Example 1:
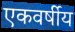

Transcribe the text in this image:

एकवर्षीय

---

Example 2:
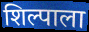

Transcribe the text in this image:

शिल्पाला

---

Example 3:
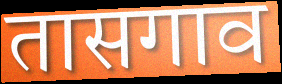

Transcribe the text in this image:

तासगाव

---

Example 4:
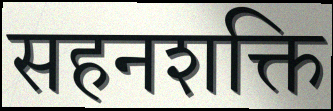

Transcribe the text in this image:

सहनशक्ति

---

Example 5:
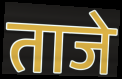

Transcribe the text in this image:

ताजे